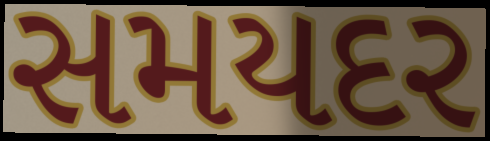
સમયદર